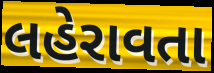
લહેરાવતા